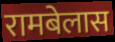
रामबेलास